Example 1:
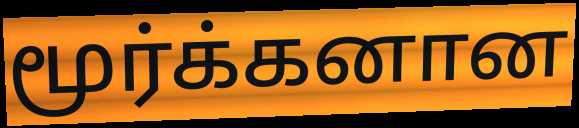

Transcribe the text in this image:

மூர்க்கனான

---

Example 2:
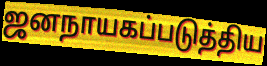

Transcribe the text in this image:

ஜனநாயகப்படுத்திய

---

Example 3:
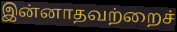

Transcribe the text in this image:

இன்னாதவற்றைச்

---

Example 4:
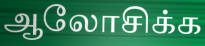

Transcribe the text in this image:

ஆலோசிக்க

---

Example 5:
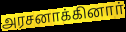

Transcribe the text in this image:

அரசனாக்கினார்